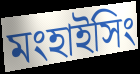
মংহাইসিং